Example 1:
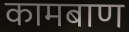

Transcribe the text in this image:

कामबाण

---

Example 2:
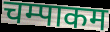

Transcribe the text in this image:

चम्पाकम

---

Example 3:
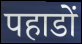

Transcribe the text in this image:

पहाडों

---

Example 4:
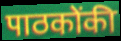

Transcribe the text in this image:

पाठकोंकी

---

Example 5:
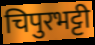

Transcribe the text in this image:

चिपुरभट्टी